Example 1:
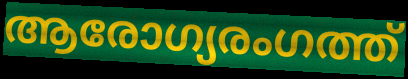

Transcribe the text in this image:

ആരോഗ്യരംഗത്ത്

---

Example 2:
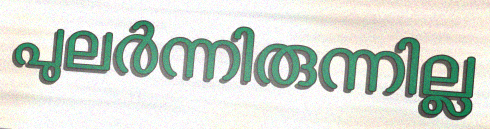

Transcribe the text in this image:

പുലർന്നിരുന്നില്ല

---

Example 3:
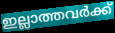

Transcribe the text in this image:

ഇല്ലാത്തവർക്ക്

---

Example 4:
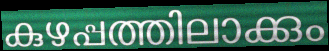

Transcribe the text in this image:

കുഴപ്പത്തിലാക്കും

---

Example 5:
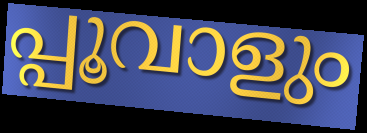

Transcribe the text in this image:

പ്പൂവാളും